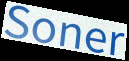
Soner